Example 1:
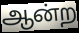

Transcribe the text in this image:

ஆன்ற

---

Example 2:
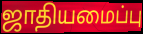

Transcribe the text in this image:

ஜாதியமைப்பு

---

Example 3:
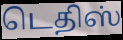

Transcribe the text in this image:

டெதிஸ்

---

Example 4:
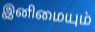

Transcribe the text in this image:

இனிமையும்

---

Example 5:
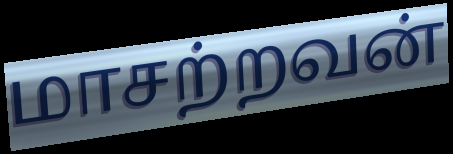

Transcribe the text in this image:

மாசற்றவன்